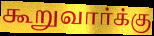
கூறுவார்க்கு